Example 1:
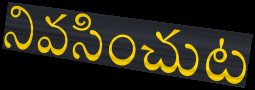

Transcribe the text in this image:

నివసించుట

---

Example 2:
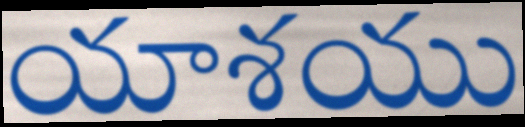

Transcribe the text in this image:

యాశయు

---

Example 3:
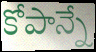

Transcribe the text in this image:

కోపాన్నే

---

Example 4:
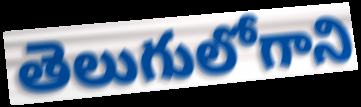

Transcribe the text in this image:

తెలుగులోగాని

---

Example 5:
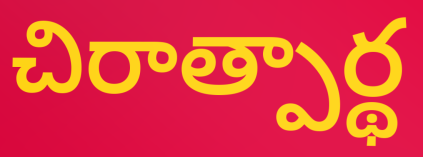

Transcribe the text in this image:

చిరాత్పార్థ